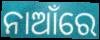
ନାଆଁରେ